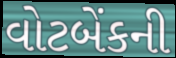
વોટબેંકની